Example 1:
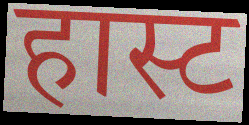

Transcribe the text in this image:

हास्ट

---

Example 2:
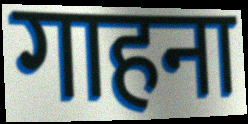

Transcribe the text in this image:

गाहना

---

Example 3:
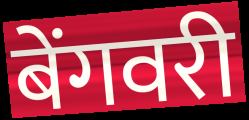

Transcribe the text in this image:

बेंगवरी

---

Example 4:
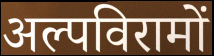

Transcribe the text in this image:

अल्पविरामों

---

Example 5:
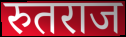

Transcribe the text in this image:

रुतराज